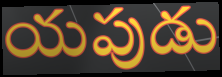
యపుడు